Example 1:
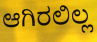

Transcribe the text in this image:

ಆಗಿರಲಿಲ್ಲ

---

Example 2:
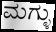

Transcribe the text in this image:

ಮಗ್ಳು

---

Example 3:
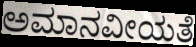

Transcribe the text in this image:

ಅಮಾನವೀಯತೆ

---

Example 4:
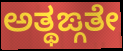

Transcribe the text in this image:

ಅತ್ಥಙ್ಗತೇ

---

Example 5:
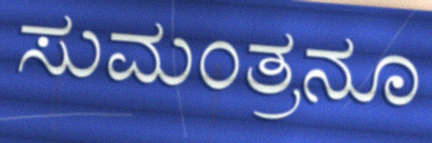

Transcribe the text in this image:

ಸುಮಂತ್ರನೂ